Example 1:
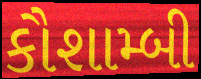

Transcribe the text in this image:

કૌશામ્બી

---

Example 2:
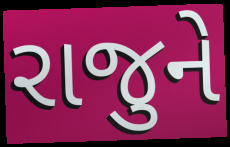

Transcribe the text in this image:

રાજુને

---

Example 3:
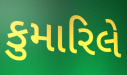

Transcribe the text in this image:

કુમારિલે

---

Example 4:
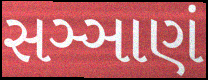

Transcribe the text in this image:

સઞ્ઞાણં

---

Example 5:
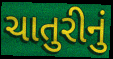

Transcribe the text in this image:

ચાતુરીનું